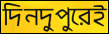
দিনদুপুরেই